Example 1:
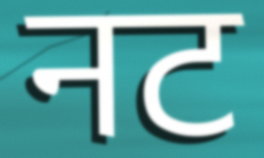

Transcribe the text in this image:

नट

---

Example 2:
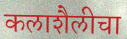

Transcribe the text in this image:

कलाशैलीचा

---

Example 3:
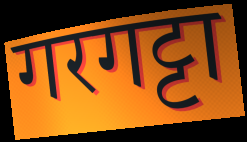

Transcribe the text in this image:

गरगट्टा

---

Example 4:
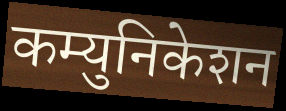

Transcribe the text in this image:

कम्युनिकेशन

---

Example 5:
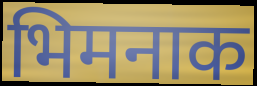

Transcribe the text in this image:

भिमनाक